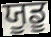
ਯੂਡੂ